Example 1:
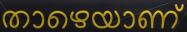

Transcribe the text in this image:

താഴെയാണ്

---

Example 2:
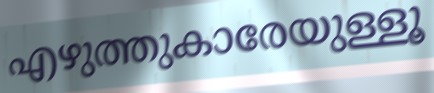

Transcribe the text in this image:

എഴുത്തുകാരേയുള്ളൂ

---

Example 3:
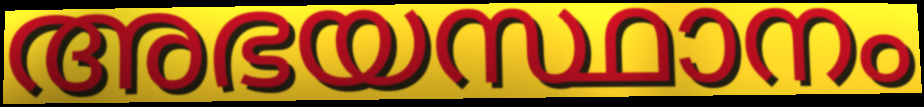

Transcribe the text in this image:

അഭയസ്ഥാനം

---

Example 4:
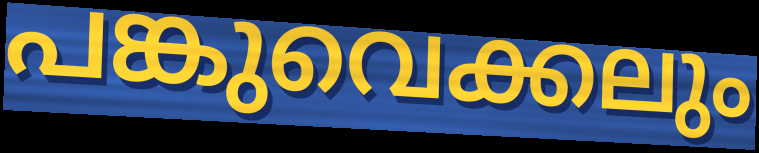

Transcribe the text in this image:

പങ്കുവെക്കലും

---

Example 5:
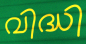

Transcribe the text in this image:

വിദ്ധി